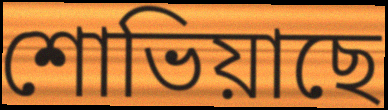
শোভিয়াছে